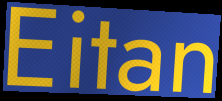
Eitan